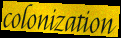
colonization